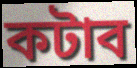
কটাব